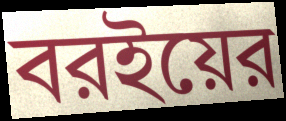
বরইয়ের